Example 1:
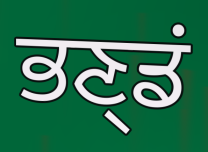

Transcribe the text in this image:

ਭਣ੍ਡਂ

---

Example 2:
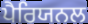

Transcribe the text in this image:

ਪੈਰਿਯਨਲ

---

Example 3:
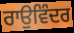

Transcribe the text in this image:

ਰਾਉਵਿੰਦਰ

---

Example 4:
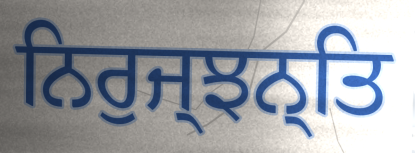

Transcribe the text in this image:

ਨਿਰੁਜ੍ਝਨ੍ਤਿ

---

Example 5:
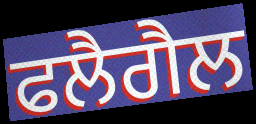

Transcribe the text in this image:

ਫਲੈਗੈਲ